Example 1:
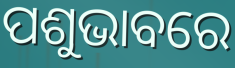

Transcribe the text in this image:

ପଶୁଭାବରେ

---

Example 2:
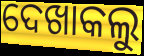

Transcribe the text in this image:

ଦେଖାକଲୁ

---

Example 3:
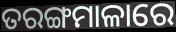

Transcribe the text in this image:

ତରଙ୍ଗମାଳାରେ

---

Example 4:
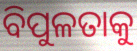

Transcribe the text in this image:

ବିପୁଳତାକୁ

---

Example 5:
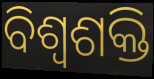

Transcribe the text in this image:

ବିଶ୍ଵଶକ୍ତି